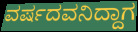
ವರ್ಷದವನಿದ್ದಾಗ